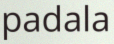
padala